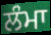
ਲੰਮਾ